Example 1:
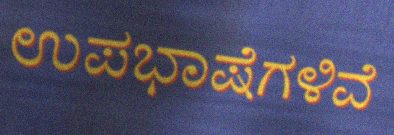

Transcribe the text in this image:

ಉಪಭಾಷೆಗಳಿವೆ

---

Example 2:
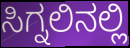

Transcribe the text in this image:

ಸಿಗ್ನಲಿನಲ್ಲಿ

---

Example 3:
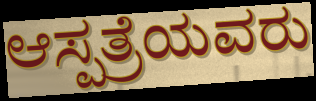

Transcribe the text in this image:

ಆಸ್ಪತ್ರೆಯವರು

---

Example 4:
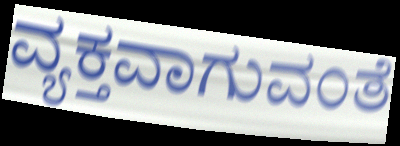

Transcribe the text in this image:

ವ್ಯಕ್ತವಾಗುವಂತೆ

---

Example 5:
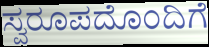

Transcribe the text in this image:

ಸ್ವರೂಪದೊಂದಿಗೆ